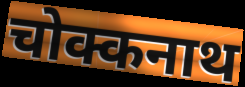
चोक्कनाथ